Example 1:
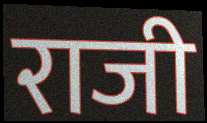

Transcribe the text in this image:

राजी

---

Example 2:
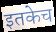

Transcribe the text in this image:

इतकेच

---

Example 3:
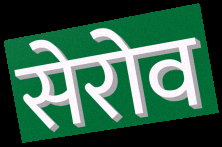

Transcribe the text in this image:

सेरोव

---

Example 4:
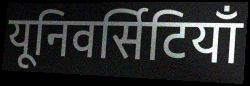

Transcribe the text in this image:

यूनिवर्सिटियाँ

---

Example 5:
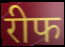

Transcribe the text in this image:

रीफ